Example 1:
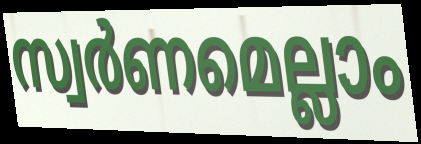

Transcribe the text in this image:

സ്വർണമെല്ലാം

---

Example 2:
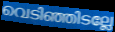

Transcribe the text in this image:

വെടിഞ്ഞിടല്ലേ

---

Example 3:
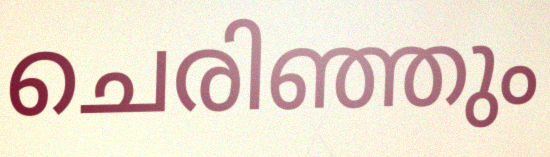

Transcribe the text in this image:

ചെരിഞ്ഞും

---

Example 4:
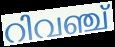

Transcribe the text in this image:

റിവഞ്ച്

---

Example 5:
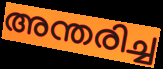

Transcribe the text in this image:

അന്തരിച്ച